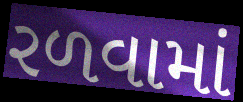
રળવામાં